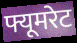
फ्यूमरेट